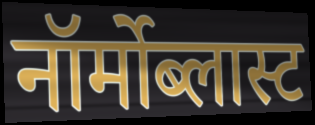
नॉर्मोब्लास्ट